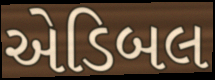
એડિબલ